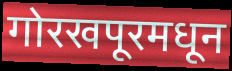
गोरखपूरमधून